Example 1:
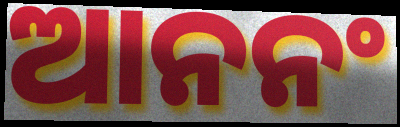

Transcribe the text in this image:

ଆନନଂ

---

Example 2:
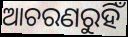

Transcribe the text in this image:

ଆଚରଣରୁହିଁ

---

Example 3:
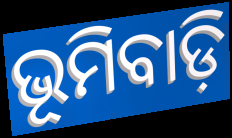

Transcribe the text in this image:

ଭୂମିବାଡ଼ି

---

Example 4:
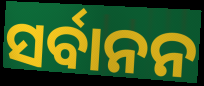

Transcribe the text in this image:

ସର୍ବାନନ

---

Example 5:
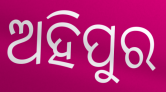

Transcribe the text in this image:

ଅହିପୁର